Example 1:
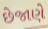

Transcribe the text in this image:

છેજાણે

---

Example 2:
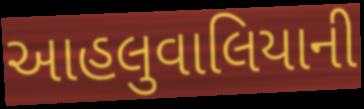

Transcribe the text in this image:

આહલુવાલિયાની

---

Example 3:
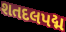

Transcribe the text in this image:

શતદલપદ્મ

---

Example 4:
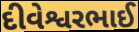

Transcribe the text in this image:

દીવેશ્વરભાઈ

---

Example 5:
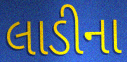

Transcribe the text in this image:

લાડીના